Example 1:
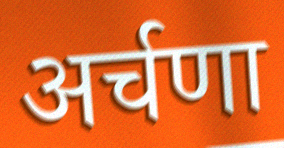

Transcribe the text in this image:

अर्चणा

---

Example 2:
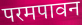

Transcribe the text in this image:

परमपावन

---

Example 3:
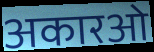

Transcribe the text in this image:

अकारओ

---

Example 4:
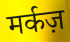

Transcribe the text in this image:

मर्कज़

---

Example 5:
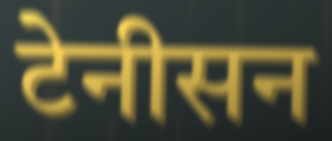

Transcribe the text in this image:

टेनीसन